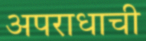
अपराधाची